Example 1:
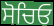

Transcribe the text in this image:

ਸੋਚਿਓ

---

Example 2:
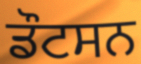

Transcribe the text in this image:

ਡੌਟਸਨ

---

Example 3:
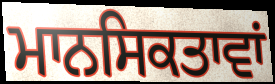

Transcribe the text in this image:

ਮਾਨਸਿਕਤਾਵਾਂ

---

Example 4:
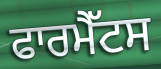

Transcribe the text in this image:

ਫਾਰਮੈੱਟਸ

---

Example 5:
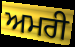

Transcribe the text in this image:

ਅਮਰੀ